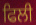
ਫਿਲੀ